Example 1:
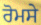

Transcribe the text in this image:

ਰੋਮਸੇ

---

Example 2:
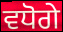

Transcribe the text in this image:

ਵਧੋਗੇ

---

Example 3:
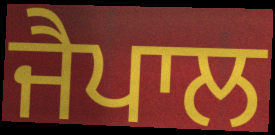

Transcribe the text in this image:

ਜੈਪਾਲ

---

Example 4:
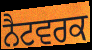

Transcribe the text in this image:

ਨੈਟਵਰਕ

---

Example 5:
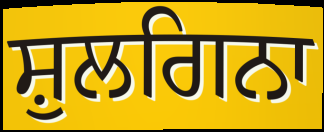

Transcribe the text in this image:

ਸ਼ੁਲਗਿਨਾ